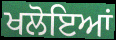
ਖਲੋਇਆਂ